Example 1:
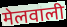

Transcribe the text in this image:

मेलवाली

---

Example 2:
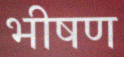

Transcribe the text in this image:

भीषण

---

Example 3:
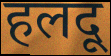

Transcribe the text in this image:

हलदू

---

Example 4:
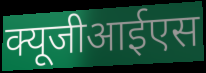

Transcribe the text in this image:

क्यूजीआईएस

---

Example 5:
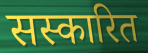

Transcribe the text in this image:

सस्कारित